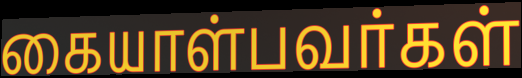
கையாள்பவர்கள்